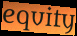
equity